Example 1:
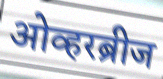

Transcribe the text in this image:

ओव्हरब्रीज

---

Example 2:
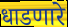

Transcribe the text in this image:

धाडणारे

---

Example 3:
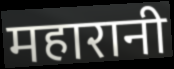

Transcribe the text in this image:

महारानी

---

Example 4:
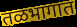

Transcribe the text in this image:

तळभागात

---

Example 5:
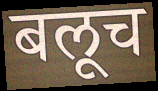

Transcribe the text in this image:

बलूच